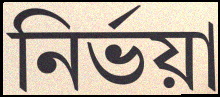
নির্ভয়া